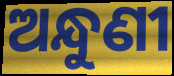
ଅନ୍ଧୁଣୀ